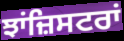
ਝਾਂਜ਼ਿਸਟਰਾਂ